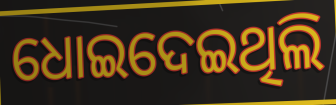
ଧୋଇଦେଇଥିଲି